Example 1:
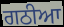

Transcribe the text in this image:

ਗਠੀਆ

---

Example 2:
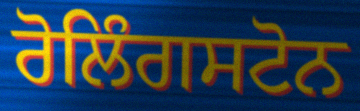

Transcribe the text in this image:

ਰੋਲਿੰਗਸਟੋਨ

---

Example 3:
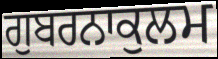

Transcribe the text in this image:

ਗੁਬਰਨਾਕੁਲਮ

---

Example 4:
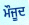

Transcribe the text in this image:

ਮੌਜੂਦ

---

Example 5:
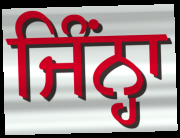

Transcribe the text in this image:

ਜਿੰਂਨ੍ਹਾ